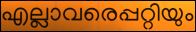
എല്ലാവരെപ്പറ്റിയും